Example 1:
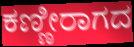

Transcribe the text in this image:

ಕಣ್ಣೀರಾಗದ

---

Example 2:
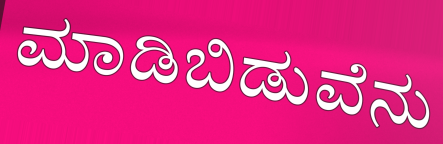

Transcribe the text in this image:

ಮಾಡಿಬಿಡುವೆನು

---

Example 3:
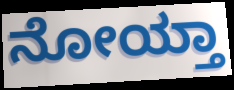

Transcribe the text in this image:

ನೋಯ್ತಾ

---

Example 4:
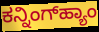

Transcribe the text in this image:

ಕನ್ನಿಂಗ್‌ಹ್ಯಾಂ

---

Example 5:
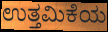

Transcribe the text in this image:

ಉತ್ತಮಿಕೆಯ